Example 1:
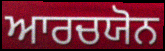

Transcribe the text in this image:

ਆਰਚਯੋਨ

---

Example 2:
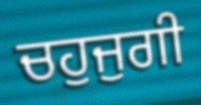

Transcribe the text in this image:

ਚਹੁਜੁਗੀ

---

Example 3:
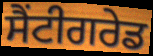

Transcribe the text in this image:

ਸੈਂਟੀਗਰੇਡ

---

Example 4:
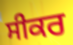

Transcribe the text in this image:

ਸੀਕਰ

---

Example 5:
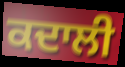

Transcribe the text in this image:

ਕਦਾਲੀ